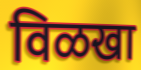
विळखा